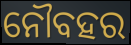
ନୌବହର